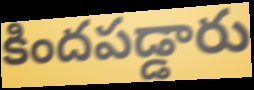
కిందపడ్డారు